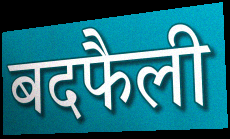
बदफैली